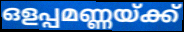
ഒളപ്പമണ്ണയ്ക്ക്